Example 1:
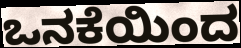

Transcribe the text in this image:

ಒನಕೆಯಿಂದ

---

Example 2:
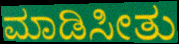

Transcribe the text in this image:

ಮಾಡಿಸೀತು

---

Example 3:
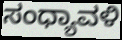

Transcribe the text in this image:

ಸಂಧ್ಯಾವಳಿ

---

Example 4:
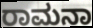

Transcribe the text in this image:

ರಾಮನಾ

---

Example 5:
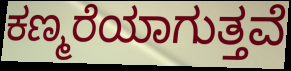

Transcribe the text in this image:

ಕಣ್ಮರೆಯಾಗುತ್ತವೆ